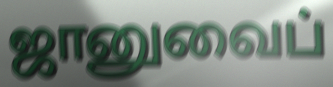
ஜானுவைப்